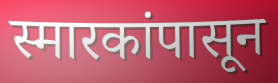
स्मारकांपासून